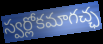
స్వర్లోకమాగచ్ఛ